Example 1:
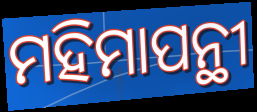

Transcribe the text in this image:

ମହିମାପନ୍ଥୀ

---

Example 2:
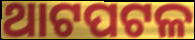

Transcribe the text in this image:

ଥାଟପଟଳ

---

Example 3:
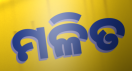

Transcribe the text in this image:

ମଳିତ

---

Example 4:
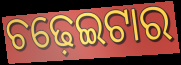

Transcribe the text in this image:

ଚଢ଼େଇଟାର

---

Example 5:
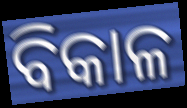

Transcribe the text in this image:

ବିକାଳ